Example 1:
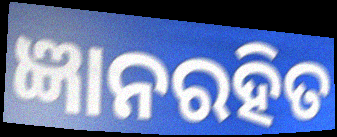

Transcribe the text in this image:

ଜ୍ଞାନରହିତ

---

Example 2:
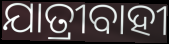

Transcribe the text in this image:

ଯାତ୍ରୀବାହୀ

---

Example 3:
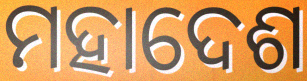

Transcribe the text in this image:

ମହାଦେଶ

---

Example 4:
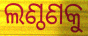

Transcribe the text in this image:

ଲଣ୍ଠଣକୁ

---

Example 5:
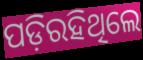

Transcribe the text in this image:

ପଡ଼ିରହିଥିଲେ